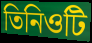
তিনিওটি